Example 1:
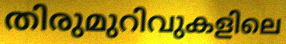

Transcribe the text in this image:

തിരുമുറിവുകളിലെ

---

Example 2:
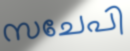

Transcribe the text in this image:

സചേപി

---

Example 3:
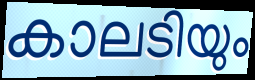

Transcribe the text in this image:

കാലടിയും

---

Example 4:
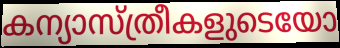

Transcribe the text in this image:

കന്യാസ്ത്രീകളുടെയോ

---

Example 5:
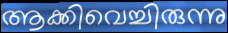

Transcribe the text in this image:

ആക്കിവെച്ചിരുന്നു